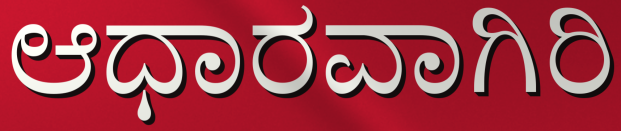
ಆಧಾರವಾಗಿರಿ